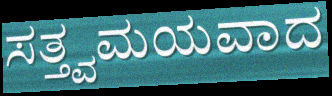
ಸತ್ತ್ವಮಯವಾದ